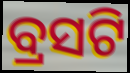
ବ୍ରସଟି